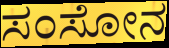
ಸಂಸೋನ